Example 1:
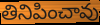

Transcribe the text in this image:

తినిపించావు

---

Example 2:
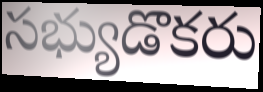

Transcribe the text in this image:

సభ్యుడొకరు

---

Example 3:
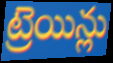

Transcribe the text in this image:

ట్రెయిన్లు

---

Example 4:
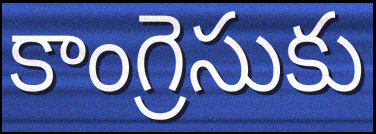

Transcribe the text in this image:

కాంగ్రెసుకు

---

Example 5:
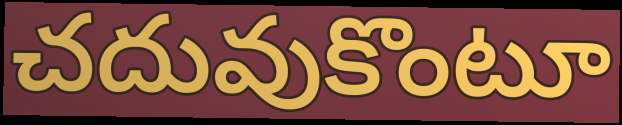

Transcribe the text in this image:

చదువుకొంటూ